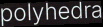
polyhedra